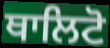
ਥਾਲਿਟੋ